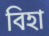
বিহা